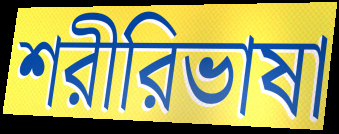
শরীরিভাষা